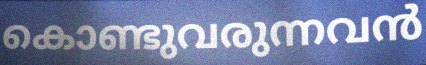
കൊണ്ടുവരുന്നവൻ